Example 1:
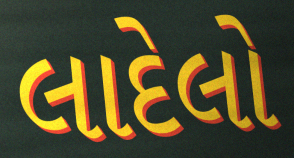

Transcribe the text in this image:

લાદેલો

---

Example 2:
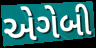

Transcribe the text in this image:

એગેબી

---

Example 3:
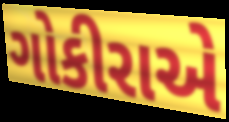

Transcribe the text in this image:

ગોકીરાએ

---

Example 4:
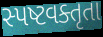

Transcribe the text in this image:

સ્પષ્ટવક્તૃતા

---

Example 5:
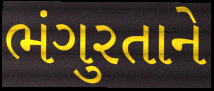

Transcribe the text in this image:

ભંગુરતાને